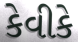
કેવીકે